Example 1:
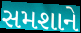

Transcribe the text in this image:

સમશાને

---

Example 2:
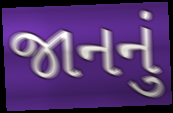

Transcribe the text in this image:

જાનનું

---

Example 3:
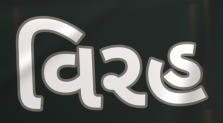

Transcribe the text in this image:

વિરહ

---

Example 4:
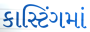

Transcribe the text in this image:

કાસ્ટિંગમાં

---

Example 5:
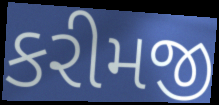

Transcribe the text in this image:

કરીમજી